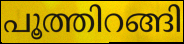
പൂത്തിറങ്ങി